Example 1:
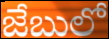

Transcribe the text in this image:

జేబులో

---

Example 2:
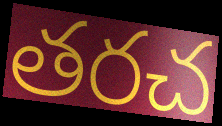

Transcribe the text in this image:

తరచ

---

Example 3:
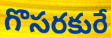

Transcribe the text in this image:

గొసరకురే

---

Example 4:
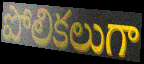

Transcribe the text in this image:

పోలికలుగా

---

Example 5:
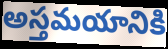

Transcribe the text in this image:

అస్తమయానికి